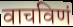
वाचविणं